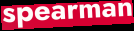
spearman